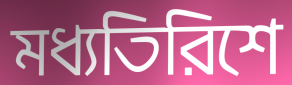
মধ্যতিরিশে